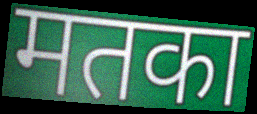
मतका